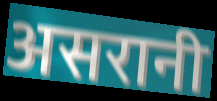
असरानी